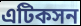
এটিকসন